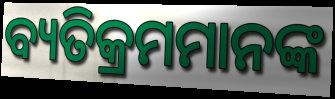
ବ୍ୟତିକ୍ରମମାନଙ୍କ